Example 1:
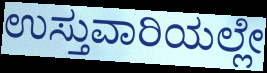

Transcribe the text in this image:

ಉಸ್ತುವಾರಿಯಲ್ಲೇ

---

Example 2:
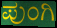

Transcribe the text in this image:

ಪುಂಗಿ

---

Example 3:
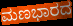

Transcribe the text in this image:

ಮಣಭಾರದ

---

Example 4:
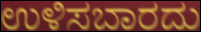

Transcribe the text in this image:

ಉಳಿಸಬಾರದು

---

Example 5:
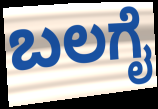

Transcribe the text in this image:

ಬಲಗೈ